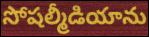
సోషల్మీడియాను